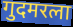
गुदमरला